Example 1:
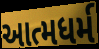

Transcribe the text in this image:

આત્મધર્મ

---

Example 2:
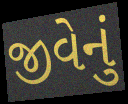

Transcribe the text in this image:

જીવેનું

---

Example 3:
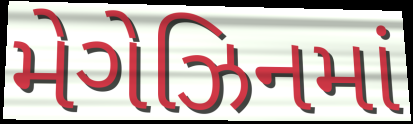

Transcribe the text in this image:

મેગેઝિનમાં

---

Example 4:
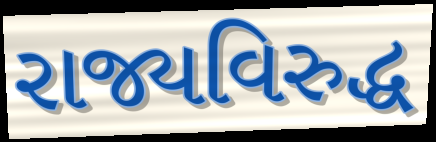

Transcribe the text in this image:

રાજ્યવિરુદ્ધ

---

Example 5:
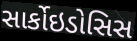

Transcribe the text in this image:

સાર્કોઇડોસિસ